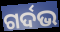
ଗର୍ଦଭ